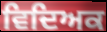
ਵਿਦਿਅਕ